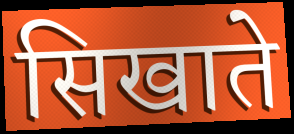
सिखाते